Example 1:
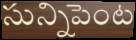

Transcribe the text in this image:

సున్నిపెంట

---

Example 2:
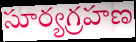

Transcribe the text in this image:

సూర్యగ్రహణ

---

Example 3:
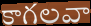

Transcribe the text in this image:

కాగలవా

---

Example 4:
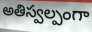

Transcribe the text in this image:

అతిస్వల్పంగా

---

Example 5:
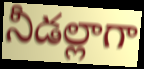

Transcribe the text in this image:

నీడల్లాగా